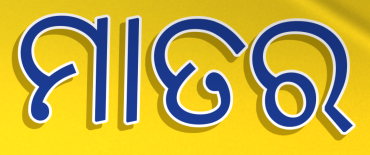
ମାତର